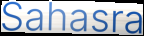
Sahasra